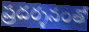
ప్రదర్శనంతో